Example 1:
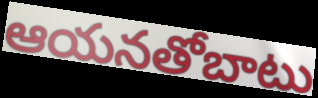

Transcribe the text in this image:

ఆయనతోబాటు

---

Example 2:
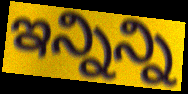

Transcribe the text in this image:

ఇన్నిన్ని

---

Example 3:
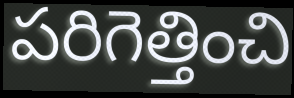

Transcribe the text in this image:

పరిగెత్తించి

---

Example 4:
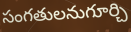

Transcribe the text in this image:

సంగతులనుగూర్చి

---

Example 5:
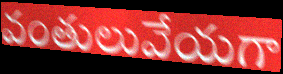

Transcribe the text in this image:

వంతులువేయగా